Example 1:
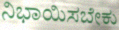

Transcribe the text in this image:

ನಿಭಾಯಿಸಬೇಕು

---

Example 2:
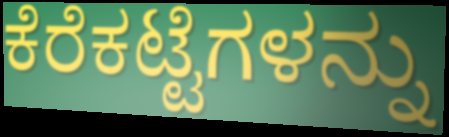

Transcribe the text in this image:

ಕೆರೆಕಟ್ಟೆಗಳನ್ನು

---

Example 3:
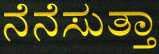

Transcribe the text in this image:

ನೆನೆಸುತ್ತಾ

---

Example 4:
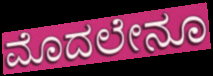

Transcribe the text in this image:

ಮೊದಲೇನೂ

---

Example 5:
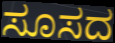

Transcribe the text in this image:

ಸೂಸದ